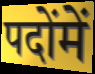
पदोंमें